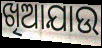
ଖିଆଯାଉ